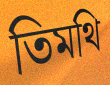
তিমথি